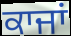
ਕਾਜਾਂ